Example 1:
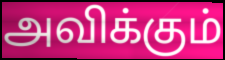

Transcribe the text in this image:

அவிக்கும்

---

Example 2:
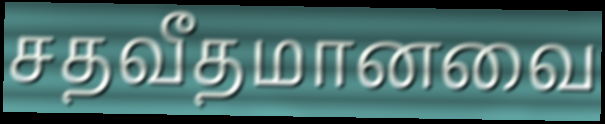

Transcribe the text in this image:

சதவீதமானவை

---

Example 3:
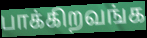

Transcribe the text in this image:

பாக்கிறவங்க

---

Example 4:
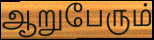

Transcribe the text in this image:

ஆறுபேரும்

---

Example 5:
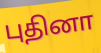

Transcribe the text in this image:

புதினா